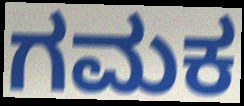
ಗಮಕ